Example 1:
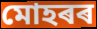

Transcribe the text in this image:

মোহৰৰ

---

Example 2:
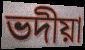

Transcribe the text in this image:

ভদীয়া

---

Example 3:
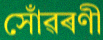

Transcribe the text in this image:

সোঁৱৰণী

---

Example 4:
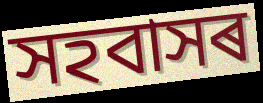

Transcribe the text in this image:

সহবাসৰ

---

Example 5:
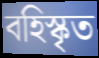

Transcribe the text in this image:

বহিস্কৃত